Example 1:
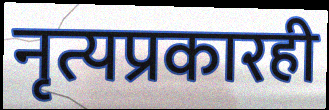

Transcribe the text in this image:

नृत्यप्रकारही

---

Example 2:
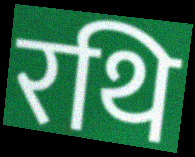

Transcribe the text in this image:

रथि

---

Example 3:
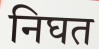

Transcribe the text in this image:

निघत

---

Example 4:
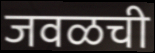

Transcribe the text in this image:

जवळची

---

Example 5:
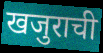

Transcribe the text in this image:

खजुराची